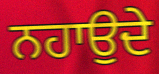
ਨਹਾਉਦੇ